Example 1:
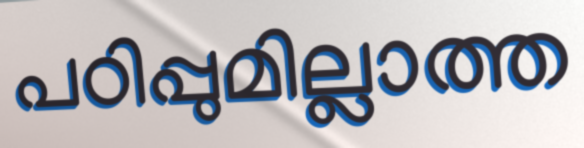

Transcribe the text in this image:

പഠിപ്പുമില്ലാത്ത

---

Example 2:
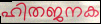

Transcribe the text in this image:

ഹിതജനക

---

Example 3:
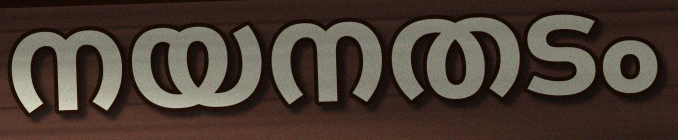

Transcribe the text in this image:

നയനതടം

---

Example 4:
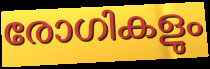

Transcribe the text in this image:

രോഗികളും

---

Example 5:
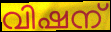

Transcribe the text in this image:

വിഷന്